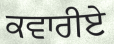
ਕਵਾਰੀਏ